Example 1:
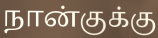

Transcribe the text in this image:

நான்குக்கு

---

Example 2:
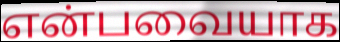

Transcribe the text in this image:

என்பவையாக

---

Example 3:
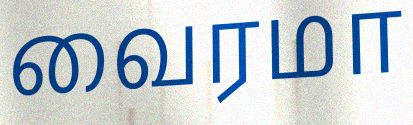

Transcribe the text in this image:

வைரமா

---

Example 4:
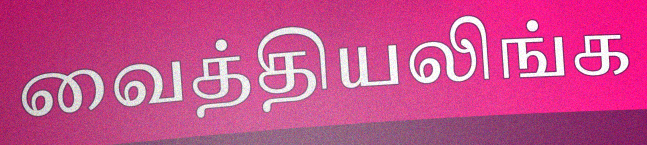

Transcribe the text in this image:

வைத்தியலிங்க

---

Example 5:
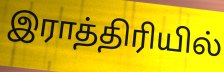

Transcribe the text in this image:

இராத்திரியில்